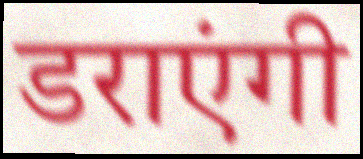
डराएंगी